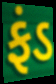
ફંડ